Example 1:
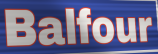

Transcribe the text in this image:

Balfour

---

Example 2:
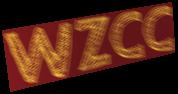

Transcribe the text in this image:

WZCC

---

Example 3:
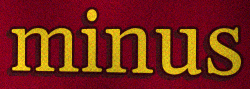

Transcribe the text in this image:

minus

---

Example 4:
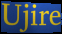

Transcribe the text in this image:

Ujire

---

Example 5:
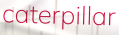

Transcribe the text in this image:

caterpillar